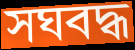
সঘবদ্ধ